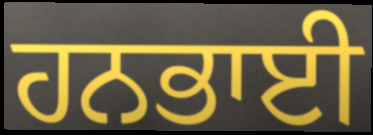
ਹਨਭਾਈ